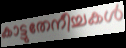
കാട്ടുതേനീച്ചകൾ